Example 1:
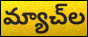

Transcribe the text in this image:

మ్యాచ్‌ల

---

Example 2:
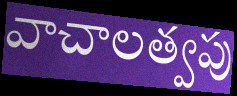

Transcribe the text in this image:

వాచాలత్వపు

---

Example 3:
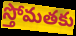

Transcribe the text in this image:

స్తోమతకు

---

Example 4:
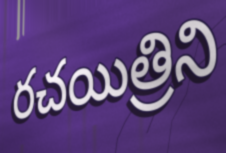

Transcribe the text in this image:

రచయిత్రిని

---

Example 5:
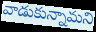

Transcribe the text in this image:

వాడుకున్నామని